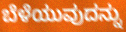
ಬೆಳೆಯುವುದನ್ನು